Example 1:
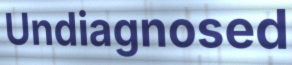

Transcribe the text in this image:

Undiagnosed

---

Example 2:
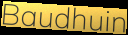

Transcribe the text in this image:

Baudhuin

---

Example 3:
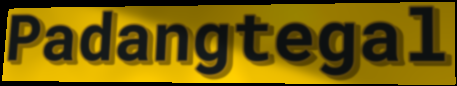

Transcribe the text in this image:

Padangtegal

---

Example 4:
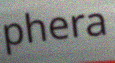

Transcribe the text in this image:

phera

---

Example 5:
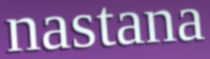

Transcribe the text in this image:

nastana